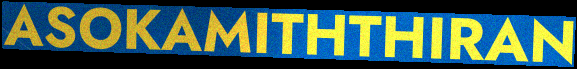
ASOKAMITHTHIRAN